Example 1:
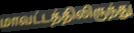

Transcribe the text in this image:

மாவட்டத்திலிருந்து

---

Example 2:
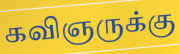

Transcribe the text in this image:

கவிஞருக்கு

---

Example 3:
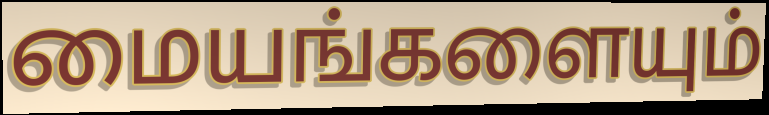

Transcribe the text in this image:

மையங்களையும்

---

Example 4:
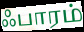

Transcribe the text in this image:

ஃபாரம்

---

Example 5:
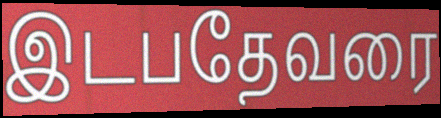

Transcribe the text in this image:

இடபதேவரை